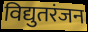
विद्युतरंजन